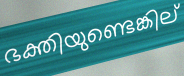
ഭക്തിയുണ്ടെങ്കില്